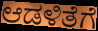
ಆಡಳಿತೆಗೆ